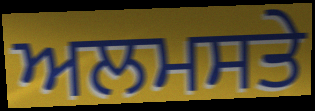
ਅਲਮਸਤੇ